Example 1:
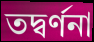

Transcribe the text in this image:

তদ্বর্ণনা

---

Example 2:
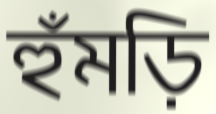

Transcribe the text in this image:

হুঁমড়ি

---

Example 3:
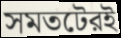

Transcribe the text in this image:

সমতটেরই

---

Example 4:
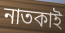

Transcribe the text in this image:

নাতকাই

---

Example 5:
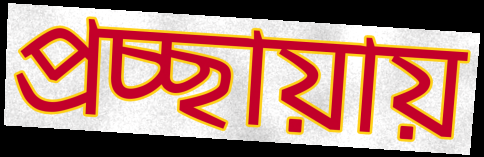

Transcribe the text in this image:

প্রচ্ছায়ায়